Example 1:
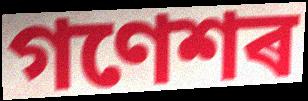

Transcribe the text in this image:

গণেশৰ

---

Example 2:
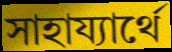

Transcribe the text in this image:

সাহায্যাৰ্থে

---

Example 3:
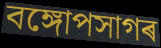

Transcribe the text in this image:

বঙ্গোপসাগৰ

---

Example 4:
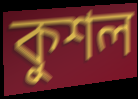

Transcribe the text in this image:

কুশল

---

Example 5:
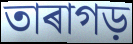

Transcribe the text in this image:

তাৰাগড়